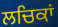
ਲਚਿਕਾਂ